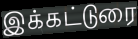
இக்கட்டுரை